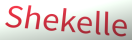
Shekelle